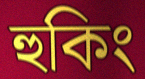
হুকিং